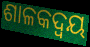
ଶାଳକଦ୍ୱୟ